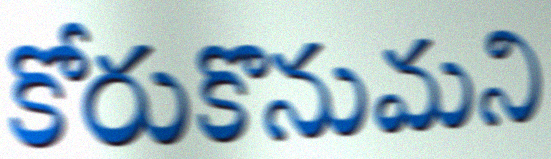
కోరుకొనుమని